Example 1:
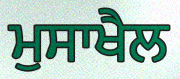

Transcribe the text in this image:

ਮੁਸਾਖੈਲ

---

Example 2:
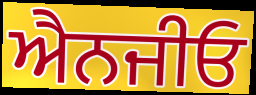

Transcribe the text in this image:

ਐਨਜੀਓ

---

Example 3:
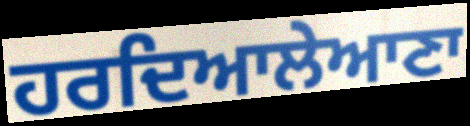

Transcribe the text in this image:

ਹਰਦਿਆਲੇਆਣਾ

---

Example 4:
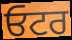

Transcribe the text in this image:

ਓਟਰ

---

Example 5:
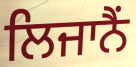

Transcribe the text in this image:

ਲਿਜਾਨੈਂ